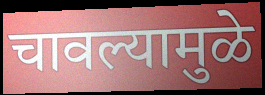
चावल्यामुळे